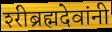
श्रीब्रह्मदेवांनी